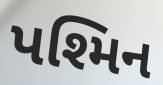
પશ્મિન